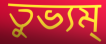
তুভ্যম্